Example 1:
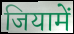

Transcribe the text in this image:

जियामें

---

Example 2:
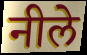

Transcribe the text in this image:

नीले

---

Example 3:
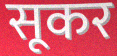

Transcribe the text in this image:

सूकर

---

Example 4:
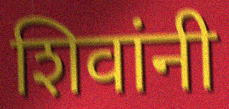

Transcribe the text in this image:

शिवांनी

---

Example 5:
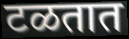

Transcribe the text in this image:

टळतात